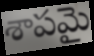
శాపమై